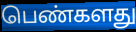
பெண்களது